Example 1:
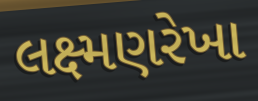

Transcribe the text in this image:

લક્ષ્મણરેખા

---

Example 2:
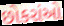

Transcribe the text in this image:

છોકરાંઓ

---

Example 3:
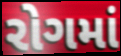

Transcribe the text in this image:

રોગમાં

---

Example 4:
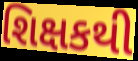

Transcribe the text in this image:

શિક્ષકથી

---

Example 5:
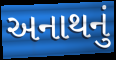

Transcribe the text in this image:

અનાથનું